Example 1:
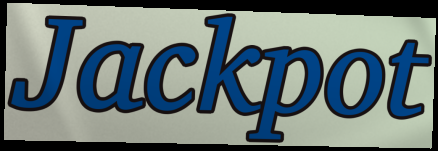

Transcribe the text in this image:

Jackpot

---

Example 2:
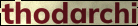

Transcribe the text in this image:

thodarchi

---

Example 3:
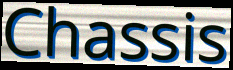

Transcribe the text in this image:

Chassis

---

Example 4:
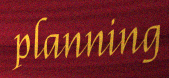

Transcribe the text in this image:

planning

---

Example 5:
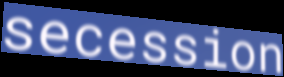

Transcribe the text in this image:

secession